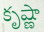
కృష్ణా